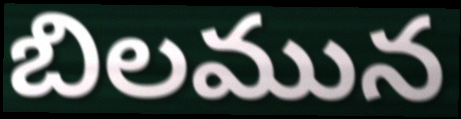
బిలమున